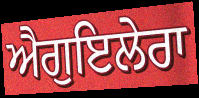
ਐਗੁਇਲੇਰਾ